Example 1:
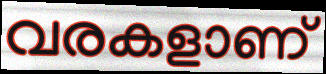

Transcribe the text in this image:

വരകളാണ്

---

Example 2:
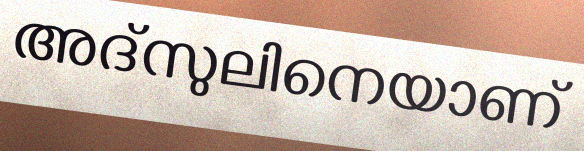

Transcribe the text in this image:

അദ്സുലിനെയാണ്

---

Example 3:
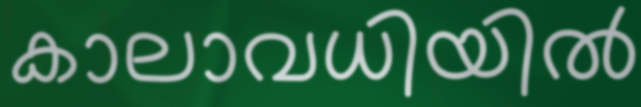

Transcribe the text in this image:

കാലാവധിയിൽ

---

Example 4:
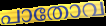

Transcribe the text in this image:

പാതോവ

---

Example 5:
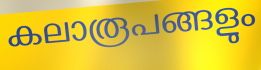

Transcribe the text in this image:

കലാരൂപങ്ങളും